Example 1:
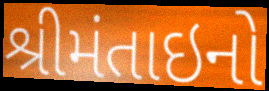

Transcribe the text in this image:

શ્રીમંતાઇનો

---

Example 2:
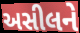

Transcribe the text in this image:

અસીલને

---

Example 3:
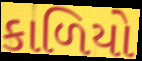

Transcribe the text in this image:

કાળિયો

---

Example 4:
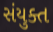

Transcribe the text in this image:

સંયુક્ત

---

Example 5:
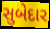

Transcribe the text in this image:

સુબેદાર